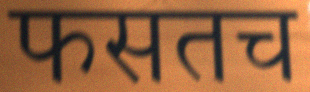
फसतच